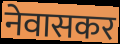
नेवासकर